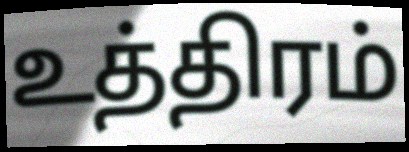
உத்திரம்